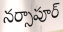
నర్సాపూర్